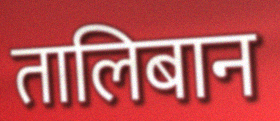
तालिबान